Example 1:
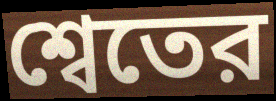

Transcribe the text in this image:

শ্বেতের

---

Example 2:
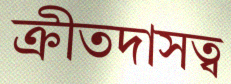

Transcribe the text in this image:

ক্রীতদাসত্ব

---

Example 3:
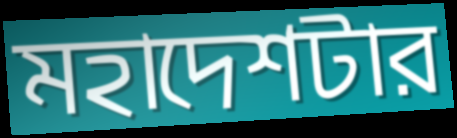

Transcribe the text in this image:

মহাদেশটার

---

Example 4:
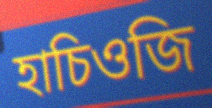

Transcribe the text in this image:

হাচিওজি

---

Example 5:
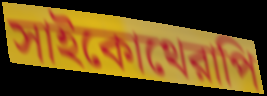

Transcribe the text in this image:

সাইকোথেরাপি